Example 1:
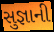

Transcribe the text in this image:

સુજ્ઞાની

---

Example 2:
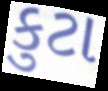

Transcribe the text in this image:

કુટા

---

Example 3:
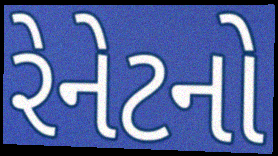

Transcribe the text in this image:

રેનેટનો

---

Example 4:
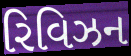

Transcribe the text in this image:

રિવિઝન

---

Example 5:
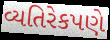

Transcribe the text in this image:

વ્યતિરેકપણે